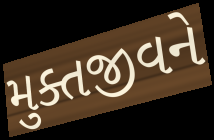
મુક્તજીવને